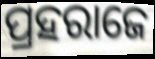
ପ୍ରହରାଜେ